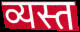
व्यस्त